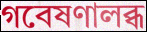
গবেষণালব্ধ